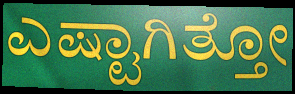
ಎಷ್ಟಾಗಿತ್ತೋ